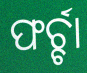
ଫର୍ଚ୍ଚା